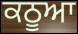
ਕਠੂਆ